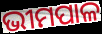
ଭୀମପାଳ